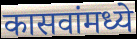
कासवांमध्ये